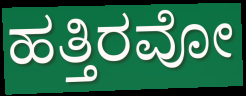
ಹತ್ತಿರವೋ